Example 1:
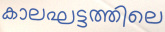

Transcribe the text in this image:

കാലഘട്ടത്തിലെ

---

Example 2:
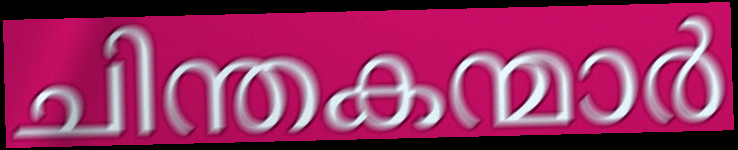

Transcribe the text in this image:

ചിന്തകന്മാർ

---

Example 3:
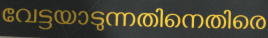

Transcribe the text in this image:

വേട്ടയാടുന്നതിനെതിരെ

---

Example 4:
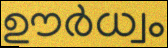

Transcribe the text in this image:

ഊർധ്വം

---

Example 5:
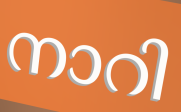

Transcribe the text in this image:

നാറി